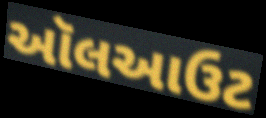
ઑલઆઉટ